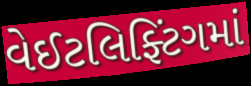
વેઈટલિફ્ટિંગમાં